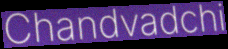
Chandvadchi